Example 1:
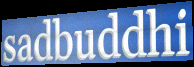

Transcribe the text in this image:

sadbuddhi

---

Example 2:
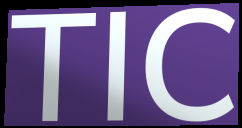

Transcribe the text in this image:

TIC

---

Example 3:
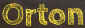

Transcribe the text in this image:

Orton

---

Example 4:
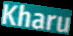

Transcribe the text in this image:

Kharu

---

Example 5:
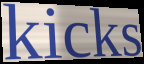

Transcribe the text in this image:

kicks